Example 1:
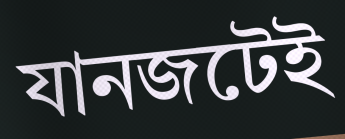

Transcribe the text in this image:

যানজটেই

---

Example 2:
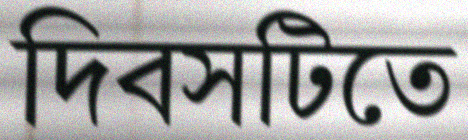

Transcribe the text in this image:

দিবসটিতে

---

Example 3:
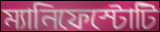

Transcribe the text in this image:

ম্যানিফেস্টোটি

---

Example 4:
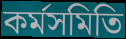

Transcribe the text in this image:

কর্মসমিতি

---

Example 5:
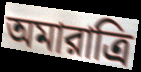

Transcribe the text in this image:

অমারাত্রি